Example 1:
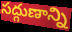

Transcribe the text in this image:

సద్గుణాన్ని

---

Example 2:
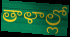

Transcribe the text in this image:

తాళాల్లో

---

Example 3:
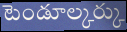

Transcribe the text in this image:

టెండూల్కర్కు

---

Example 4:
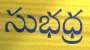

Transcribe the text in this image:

సుభధ్ర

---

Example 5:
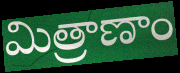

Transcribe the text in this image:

మిత్రాణాం